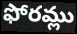
ఫోరమ్లు